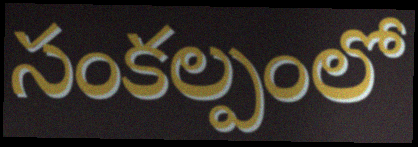
సంకల్పంలో